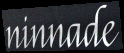
ninnade